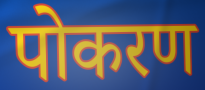
पोकरण